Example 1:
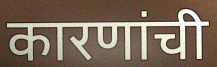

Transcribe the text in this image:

कारणांची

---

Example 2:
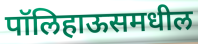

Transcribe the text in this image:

पॉलिहाऊसमधील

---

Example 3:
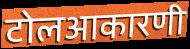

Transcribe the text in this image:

टोलआकारणी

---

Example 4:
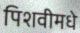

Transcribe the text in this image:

पिशवीमधे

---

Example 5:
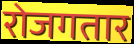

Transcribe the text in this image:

रोजगतार